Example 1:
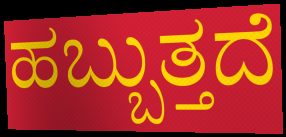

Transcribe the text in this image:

ಹಬ್ಬುತ್ತದೆ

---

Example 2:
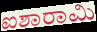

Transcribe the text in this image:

ಐಶಾರಾಮಿ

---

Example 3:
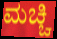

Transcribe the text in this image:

ಮಚ್ಚಿ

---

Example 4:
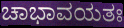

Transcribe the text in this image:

ಚಾಭಾವಯತಃ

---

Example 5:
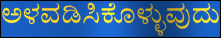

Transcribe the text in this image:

ಅಳವಡಿಸಿಕೊಳ್ಳುವುದು